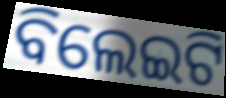
ବିଲେଇଟି